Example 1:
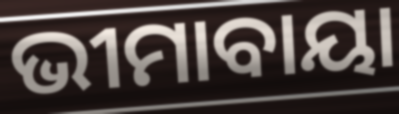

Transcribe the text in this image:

ଭୀମାବାୟା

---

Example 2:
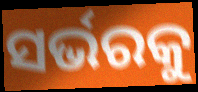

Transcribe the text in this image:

ସର୍ଭରକୁ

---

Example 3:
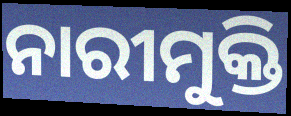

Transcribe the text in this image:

ନାରୀମୁକ୍ତି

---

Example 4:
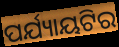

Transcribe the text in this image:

ପର୍ଯ୍ୟାୟଟିର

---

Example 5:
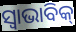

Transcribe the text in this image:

ସ୍ଵାଭାବିକ୍